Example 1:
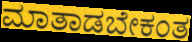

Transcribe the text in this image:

ಮಾತಾಡಬೇಕಂತ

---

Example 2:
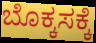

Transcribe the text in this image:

ಬೊಕ್ಕಸಕ್ಕೆ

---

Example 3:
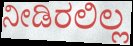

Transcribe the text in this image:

ನೀಡಿರಲಿಲ್ಲ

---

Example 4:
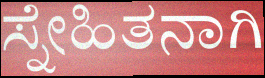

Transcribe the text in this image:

ಸ್ನೇಹಿತನಾಗಿ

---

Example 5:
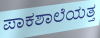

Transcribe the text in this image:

ಪಾಕಶಾಲೆಯತ್ತ